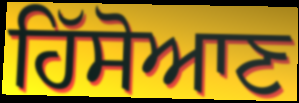
ਹਿੱਸੋਆਣ